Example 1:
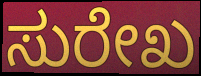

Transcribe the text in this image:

ಸುರೇಖ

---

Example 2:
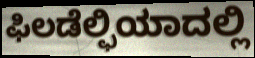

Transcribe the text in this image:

ಫಿಲಡೆಲ್ಫಿಯಾದಲ್ಲಿ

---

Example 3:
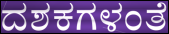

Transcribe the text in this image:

ದಶಕಗಳಂತೆ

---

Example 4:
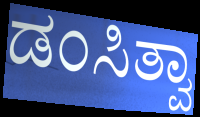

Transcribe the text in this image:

ಡಂಸಿತ್ವಾ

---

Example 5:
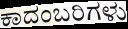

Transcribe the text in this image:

ಕಾದಂಬರಿಗಳು